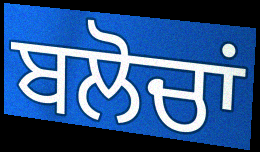
ਬਲੋਚਾਂ